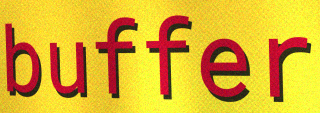
buffer